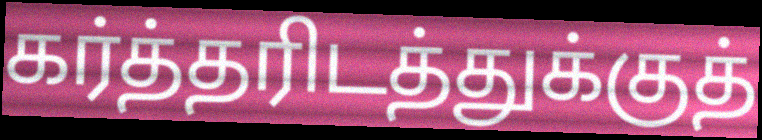
கர்த்தரிடத்துக்குத்